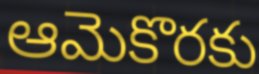
ఆమెకొరకు